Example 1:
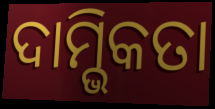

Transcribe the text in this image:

ଦାମ୍ଭିକତା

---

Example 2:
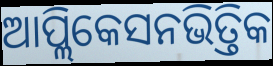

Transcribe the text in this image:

ଆପ୍ଲିକେସନଭିତ୍ତିକ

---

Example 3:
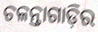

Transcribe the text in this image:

ଚଳନ୍ତାଗାଡ଼ିର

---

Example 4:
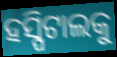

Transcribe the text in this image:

ହସ୍ପିଟାଲକୁ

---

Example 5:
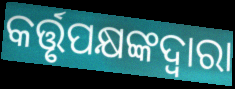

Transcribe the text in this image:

କର୍ତ୍ତୃପକ୍ଷଙ୍କଦ୍ଵାରା